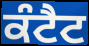
ਕੰਟੈਟ